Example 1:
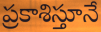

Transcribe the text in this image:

ప్రకాశిస్తూనే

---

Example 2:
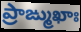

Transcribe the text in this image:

ప్రాఙ్ముఖాః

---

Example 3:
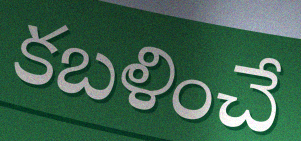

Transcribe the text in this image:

కబళించే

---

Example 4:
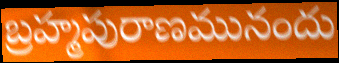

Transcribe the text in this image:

బ్రహ్మపురాణమునందు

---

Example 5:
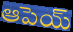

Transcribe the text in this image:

ఆపెయ్